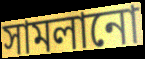
সামলানো